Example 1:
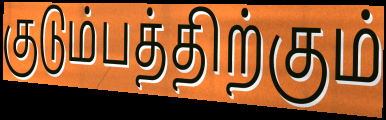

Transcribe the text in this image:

குடும்பத்திற்கும்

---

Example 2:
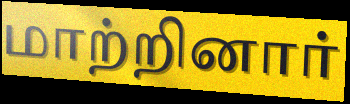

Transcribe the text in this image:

மாற்றினார்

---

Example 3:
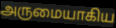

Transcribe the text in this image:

அருமையாகிய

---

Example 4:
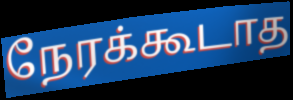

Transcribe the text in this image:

நேரக்கூடாத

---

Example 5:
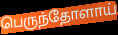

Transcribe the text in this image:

பெருந்தோளாய்